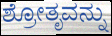
ಶ್ರೋತೃವನ್ನು